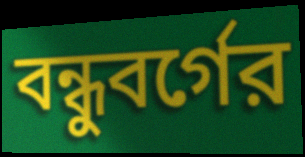
বন্ধুবর্গের